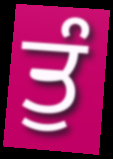
ਤੁੰ